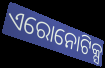
ଏରୋନୋଟିକ୍ସ